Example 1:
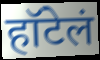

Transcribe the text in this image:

हॉटेलं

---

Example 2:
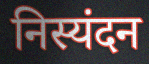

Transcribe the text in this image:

निस्यंदन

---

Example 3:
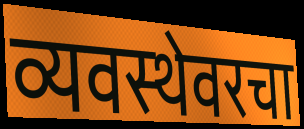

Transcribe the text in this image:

व्यवस्थेवरचा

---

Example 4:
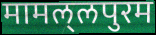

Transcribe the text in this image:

मामल्लपुरम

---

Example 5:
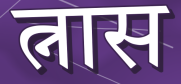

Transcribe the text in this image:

त्नास